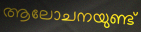
ആലോചനയുണ്ട്